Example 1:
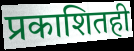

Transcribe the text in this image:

प्रकाशितही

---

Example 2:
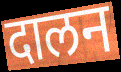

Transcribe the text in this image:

दालन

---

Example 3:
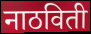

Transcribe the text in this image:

नाठविती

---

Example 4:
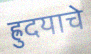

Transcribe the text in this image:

ह्रुदयाचे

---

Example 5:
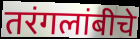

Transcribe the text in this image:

तरंगलांबीचे